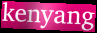
kenyang